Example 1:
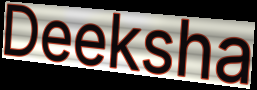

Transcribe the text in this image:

Deeksha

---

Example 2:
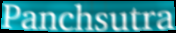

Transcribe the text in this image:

Panchsutra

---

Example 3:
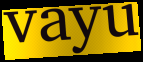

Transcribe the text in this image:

vayu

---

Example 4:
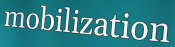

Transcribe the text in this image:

mobilization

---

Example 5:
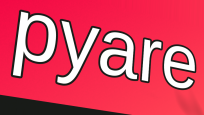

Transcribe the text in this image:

pyare